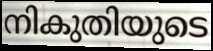
നികുതിയുടെ